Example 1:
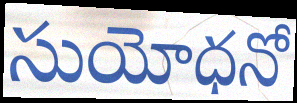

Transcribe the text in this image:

సుయోధనో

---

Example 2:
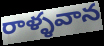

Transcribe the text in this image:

రాళ్ళవాన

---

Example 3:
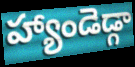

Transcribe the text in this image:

హ్యాండెడ్గా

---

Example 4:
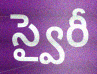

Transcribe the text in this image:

స్వైరీ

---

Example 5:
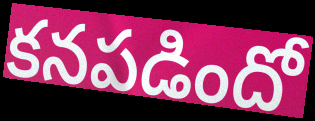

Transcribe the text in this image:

కనపడిందో